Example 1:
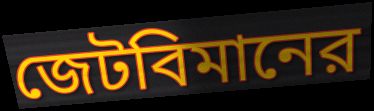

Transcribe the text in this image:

জেটবিমানের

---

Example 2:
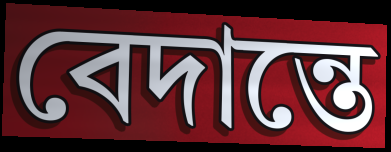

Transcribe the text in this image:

বেদান্তে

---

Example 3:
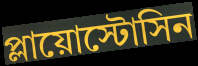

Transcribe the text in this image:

প্লায়োস্টোসিন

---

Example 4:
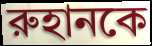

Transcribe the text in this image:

রুহানকে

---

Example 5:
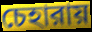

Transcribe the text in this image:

চেহারায়